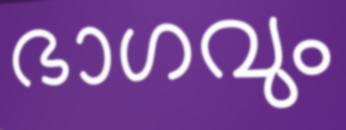
ഭാഗവും